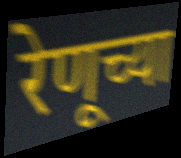
रेणूच्या